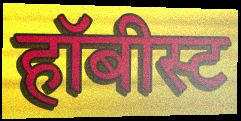
हॉबीस्ट